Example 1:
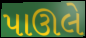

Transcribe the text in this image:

પાઊલે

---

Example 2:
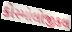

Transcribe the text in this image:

કોસ્મોલોજીકલ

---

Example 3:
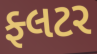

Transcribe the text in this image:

ફ્લટર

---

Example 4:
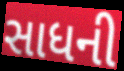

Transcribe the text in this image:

સાધની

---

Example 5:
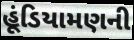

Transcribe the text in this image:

હૂંડિયામણની